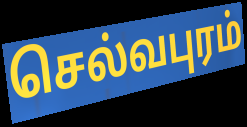
செல்வபுரம்